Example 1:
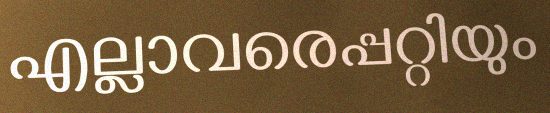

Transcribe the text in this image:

എല്ലാവരെപ്പറ്റിയും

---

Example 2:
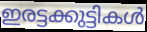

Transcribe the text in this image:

ഇരട്ടക്കുട്ടികൾ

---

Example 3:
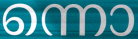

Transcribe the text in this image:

ന്നൊ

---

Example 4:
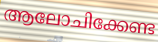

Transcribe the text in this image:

ആലോചിക്കേണ്ട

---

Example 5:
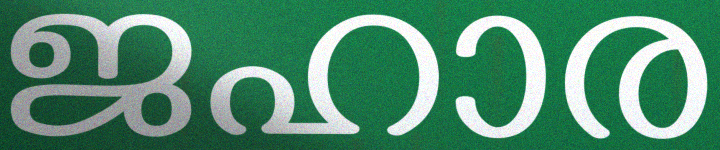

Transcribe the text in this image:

ജഹാര